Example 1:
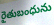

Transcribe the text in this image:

రైతుబంధును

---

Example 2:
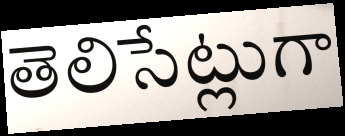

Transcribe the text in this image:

తెలిసేట్లుగా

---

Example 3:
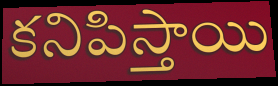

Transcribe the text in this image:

కనిపిస్తాయి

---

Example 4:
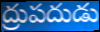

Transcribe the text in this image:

ద్రుపదుడు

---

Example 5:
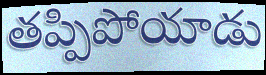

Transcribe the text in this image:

తప్పిపోయాడు